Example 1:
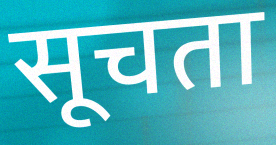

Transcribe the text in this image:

सूचता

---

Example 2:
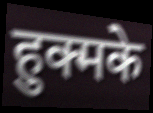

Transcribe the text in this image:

हुक्मके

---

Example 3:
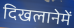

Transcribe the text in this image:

दिखलानेमें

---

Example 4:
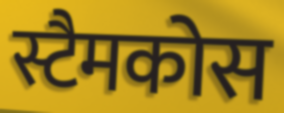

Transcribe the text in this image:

स्टैमकोस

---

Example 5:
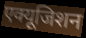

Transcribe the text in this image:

एक्यूजिशन